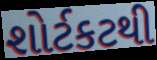
શોર્ટકટથી